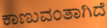
ಕಾಣುವಂತಾಗಿದೆ